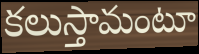
కలుస్తామంటూ